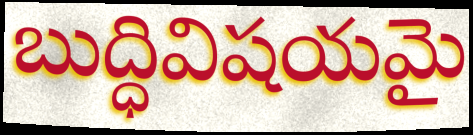
బుద్ధివిషయమై